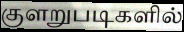
குளறுபடிகளில்